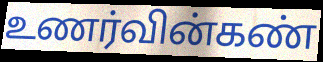
உணர்வின்கண்